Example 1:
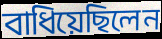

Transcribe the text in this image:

বাধিয়েছিলেন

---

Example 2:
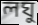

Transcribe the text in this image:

লঘু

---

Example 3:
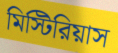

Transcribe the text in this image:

মিস্টিরিয়াস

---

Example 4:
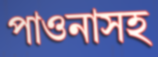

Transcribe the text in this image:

পাওনাসহ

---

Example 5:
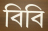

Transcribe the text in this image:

বিবি